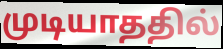
முடியாததில்